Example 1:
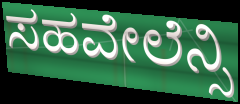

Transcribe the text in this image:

ಸಹವೇಲೆನ್ಸಿ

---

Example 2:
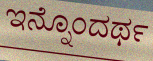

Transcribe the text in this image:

ಇನ್ನೊಂದರ್ಥ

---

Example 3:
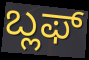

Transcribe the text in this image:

ಬ್ಲಫ್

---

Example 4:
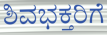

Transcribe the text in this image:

ಶಿವಭಕ್ತರಿಗೆ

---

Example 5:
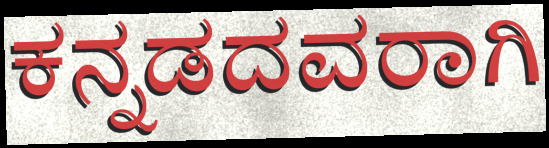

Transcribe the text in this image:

ಕನ್ನಡದವರಾಗಿ